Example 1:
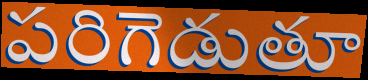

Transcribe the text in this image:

పరిగెడుతూ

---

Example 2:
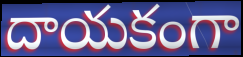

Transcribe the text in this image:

దాయకంగా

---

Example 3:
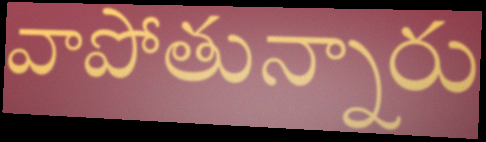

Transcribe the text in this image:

వాపోతున్నారు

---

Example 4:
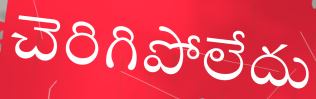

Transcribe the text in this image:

చెరిగిపోలేదు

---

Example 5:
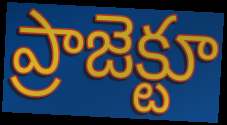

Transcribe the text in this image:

ప్రాజెక్టూ